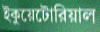
ইকুয়েটোরিয়াল